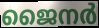
ജൈനർ